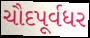
ચૌદપૂર્વધર